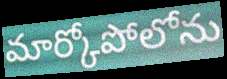
మార్కోపోలోను